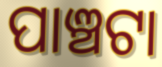
ପାଞ୍ଚଟା